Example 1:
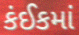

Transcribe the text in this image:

કંઈકમાં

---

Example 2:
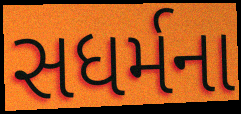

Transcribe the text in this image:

સધર્મના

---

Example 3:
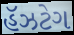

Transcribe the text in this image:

હૅઝટેગ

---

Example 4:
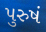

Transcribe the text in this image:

પુરુષં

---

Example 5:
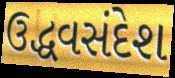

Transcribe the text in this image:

ઉદ્ધવસંદેશ